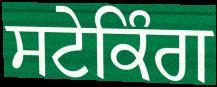
ਸਟੇਕਿੰਗ